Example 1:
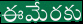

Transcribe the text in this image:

ఈమేరకు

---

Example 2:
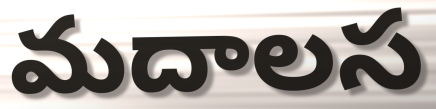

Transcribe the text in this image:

మదాలస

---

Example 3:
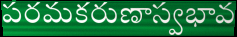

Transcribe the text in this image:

పరమకరుణాస్వభావ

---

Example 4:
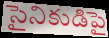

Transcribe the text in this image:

సైనికుడిపై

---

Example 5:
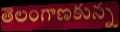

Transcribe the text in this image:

తెలంగాణకున్న